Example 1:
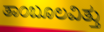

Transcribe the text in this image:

ತಾಂಬೂಲವಿತ್ತು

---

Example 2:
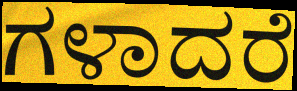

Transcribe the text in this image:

ಗಳಾದರೆ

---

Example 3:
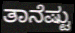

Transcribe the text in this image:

ತಾನೆಷ್ಟು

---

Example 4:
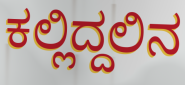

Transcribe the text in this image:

ಕಲ್ಲಿದ್ದಲಿನ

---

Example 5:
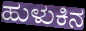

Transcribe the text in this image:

ಹುಳುಕಿನ